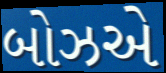
બોઝએ